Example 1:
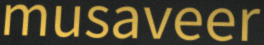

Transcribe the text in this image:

musaveer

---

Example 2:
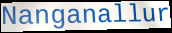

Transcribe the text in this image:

Nanganallur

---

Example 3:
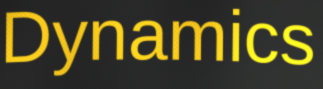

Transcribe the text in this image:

Dynamics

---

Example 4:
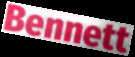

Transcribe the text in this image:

Bennett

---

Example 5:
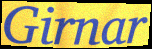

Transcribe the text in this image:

Girnar